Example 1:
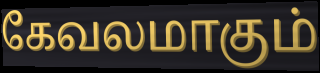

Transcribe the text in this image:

கேவலமாகும்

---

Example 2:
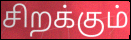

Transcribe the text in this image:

சிறக்கும்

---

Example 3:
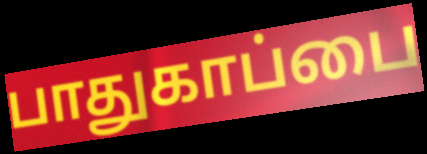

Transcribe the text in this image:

பாதுகாப்பை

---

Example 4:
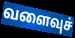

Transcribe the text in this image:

வளைவுச்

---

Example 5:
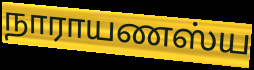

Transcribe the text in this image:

நாராயணஸ்ய